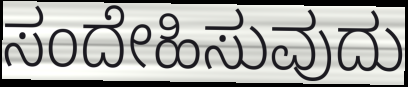
ಸಂದೇಹಿಸುವುದು